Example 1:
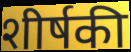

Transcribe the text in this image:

शीर्षकी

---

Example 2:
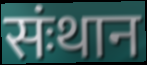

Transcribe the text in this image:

संःथान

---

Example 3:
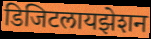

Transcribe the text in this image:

डिजिटलायझेशन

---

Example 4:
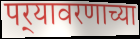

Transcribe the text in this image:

पर्यावरणाच्या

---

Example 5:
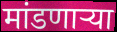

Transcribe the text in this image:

मांडणार्‍या